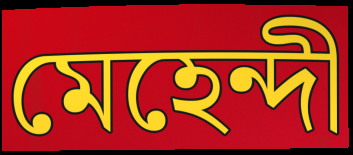
মেহেন্দী